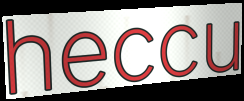
heccu